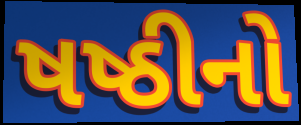
ષષ્ઠીનો